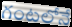
గంటలోనే